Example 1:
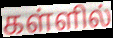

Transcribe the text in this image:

கள்ளில்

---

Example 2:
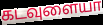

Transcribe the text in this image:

கடவுளையா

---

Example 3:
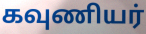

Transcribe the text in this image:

கவுணியர்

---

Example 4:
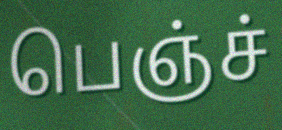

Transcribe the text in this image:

பெஞ்ச்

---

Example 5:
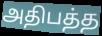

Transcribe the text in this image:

அதிபத்த